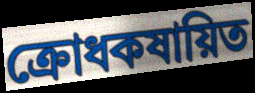
ক্রোধকষায়িত